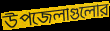
উপজেলাগুলোর